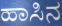
ಹಾಸಿನ